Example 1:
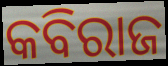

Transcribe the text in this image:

କବିରାଜ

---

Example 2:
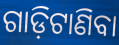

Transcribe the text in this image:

ଗାଡ଼ିଟାଣିବା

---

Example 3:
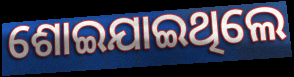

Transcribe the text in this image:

ଶୋଇଯାଇଥିଲେ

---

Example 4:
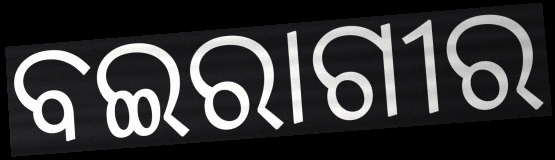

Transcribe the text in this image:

ବଇରାଗୀର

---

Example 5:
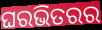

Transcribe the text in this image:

ଘରଭିତରର